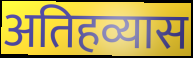
अतिहव्यास